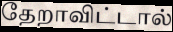
தேறாவிட்டால்